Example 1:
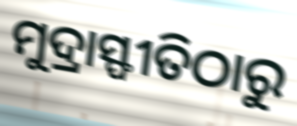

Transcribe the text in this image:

ମୁଦ୍ରାସ୍ଫୀତିଠାରୁ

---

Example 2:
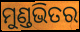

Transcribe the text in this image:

ମୁଣ୍ଡଭିତର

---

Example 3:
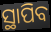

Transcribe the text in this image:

ସ୍ଥାପିବ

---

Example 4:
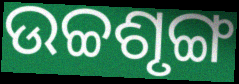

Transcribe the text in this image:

ଉଚ୍ଚଶୃଙ୍ଗ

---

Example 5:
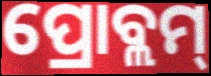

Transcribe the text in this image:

ପ୍ରୋବ୍ଲମ୍